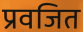
प्रवजित